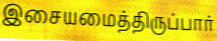
இசையமைத்திருப்பார்